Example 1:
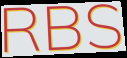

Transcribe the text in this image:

RBS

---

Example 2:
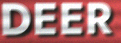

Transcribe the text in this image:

DEER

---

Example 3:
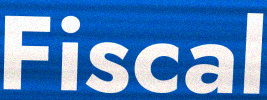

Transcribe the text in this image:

Fiscal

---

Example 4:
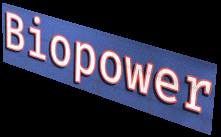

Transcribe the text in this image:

Biopower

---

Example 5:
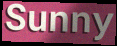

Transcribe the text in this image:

Sunny